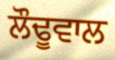
ਲੌਢੂਵਾਲ